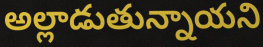
అల్లాడుతున్నాయని